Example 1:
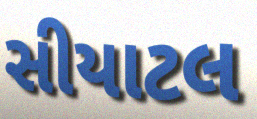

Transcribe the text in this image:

સીયાટલ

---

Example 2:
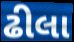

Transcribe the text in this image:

ઢીલા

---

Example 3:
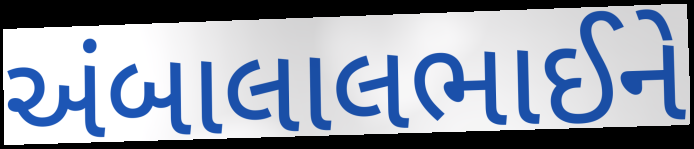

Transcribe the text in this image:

અંબાલાલભાઈને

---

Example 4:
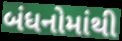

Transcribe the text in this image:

બંધનોમાંથી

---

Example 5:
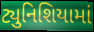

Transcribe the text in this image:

ટ્યુનિશિયામાં